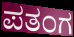
ಪತಂಗ